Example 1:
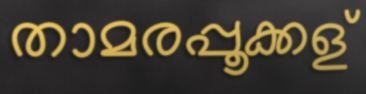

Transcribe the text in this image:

താമരപ്പൂക്കള്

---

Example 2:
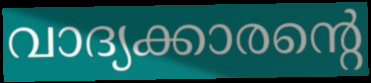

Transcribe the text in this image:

വാദ്യക്കാരന്റെ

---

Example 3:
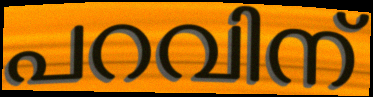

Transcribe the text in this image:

പറവിന്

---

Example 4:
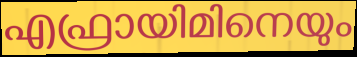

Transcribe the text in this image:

എഫ്രായിമിനെയും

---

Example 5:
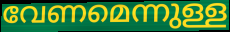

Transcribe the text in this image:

വേണമെന്നുള്ള